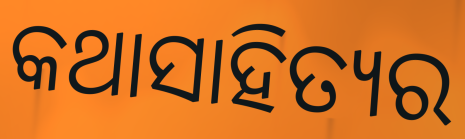
କଥାସାହିତ୍ୟର